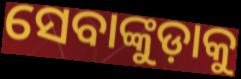
ସେବାଙ୍କୁଡ଼ାକୁ